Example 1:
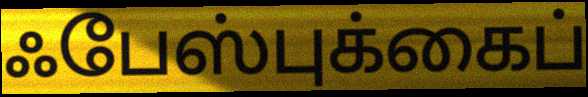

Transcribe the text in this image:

ஃபேஸ்புக்கைப்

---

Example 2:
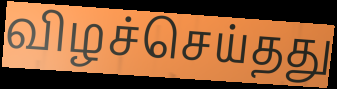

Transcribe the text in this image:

விழச்செய்தது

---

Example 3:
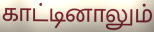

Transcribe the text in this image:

காட்டினாலும்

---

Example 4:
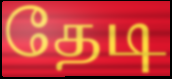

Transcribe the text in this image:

தேடி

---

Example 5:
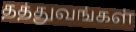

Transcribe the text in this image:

தத்துவங்கள்